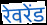
रेवरेंड